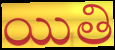
యితి